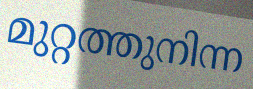
മുറ്റത്തുനിന്ന